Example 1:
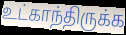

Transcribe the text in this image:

உட்காந்திருக்க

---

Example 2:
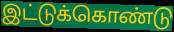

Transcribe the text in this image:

இட்டுக்கொண்டு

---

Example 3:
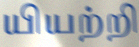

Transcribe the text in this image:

யியற்றி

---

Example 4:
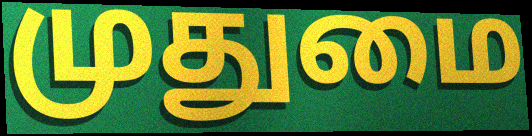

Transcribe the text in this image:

முதுமை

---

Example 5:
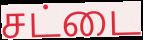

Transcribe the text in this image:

சட்டை